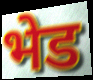
भेड